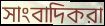
সাংবাদিকরা